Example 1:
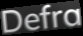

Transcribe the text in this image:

Defra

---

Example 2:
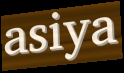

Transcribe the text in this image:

asiya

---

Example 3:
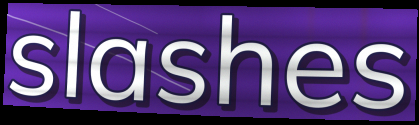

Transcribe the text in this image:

slashes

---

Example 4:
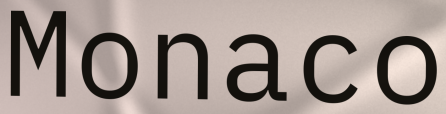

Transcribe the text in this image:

Monaco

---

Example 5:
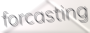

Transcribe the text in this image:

forcasting